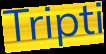
Tripti